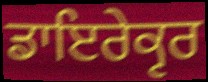
ਡਾਇਰੇਕ੍ਟਰ